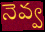
నెవ్వ